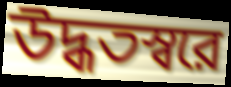
উদ্ধতস্বরে